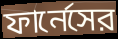
ফার্নেসের